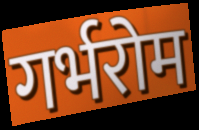
गर्भरोम